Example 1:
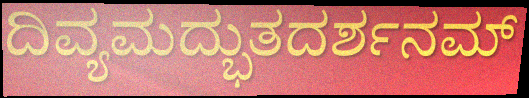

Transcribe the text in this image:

ದಿವ್ಯಮದ್ಭುತದರ್ಶನಮ್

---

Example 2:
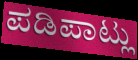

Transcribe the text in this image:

ಪಡಿಪಾಟ್ಲು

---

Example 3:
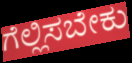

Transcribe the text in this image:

ಗೆಲ್ಲಿಸಬೇಕು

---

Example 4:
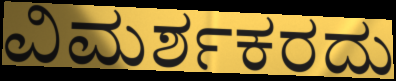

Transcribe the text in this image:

ವಿಮರ್ಶಕರದು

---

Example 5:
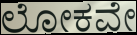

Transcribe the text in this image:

ಲೋಕವೇ